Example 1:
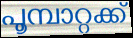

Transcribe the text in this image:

പൂമ്പാറ്റക്ക്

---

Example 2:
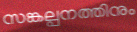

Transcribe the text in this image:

സങ്കല്പനത്തിനും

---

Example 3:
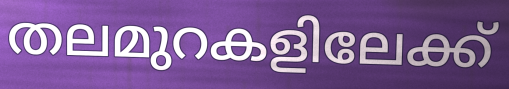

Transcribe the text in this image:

തലമുറകളിലേക്ക്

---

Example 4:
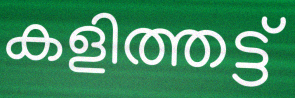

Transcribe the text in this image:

കളിത്തട്ട്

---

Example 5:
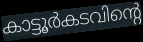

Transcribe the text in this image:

കാട്ടൂർകടവിന്റെ